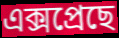
এক্সপ্ৰেছে